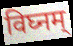
विघ्नम्